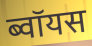
ब्वॉयस